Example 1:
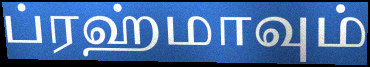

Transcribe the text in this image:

ப்ரஹ்மாவும்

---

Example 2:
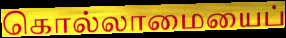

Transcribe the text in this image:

கொல்லாமையைப்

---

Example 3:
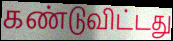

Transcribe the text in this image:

கண்டுவிட்டது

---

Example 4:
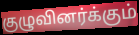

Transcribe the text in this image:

குழுவினர்க்கும்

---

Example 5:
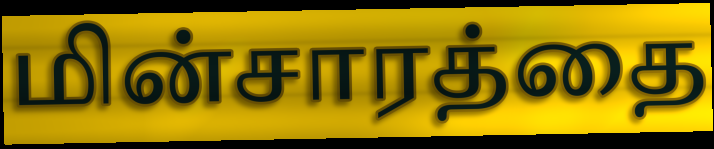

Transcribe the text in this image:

மின்சாரத்தை